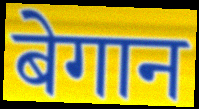
बेगान